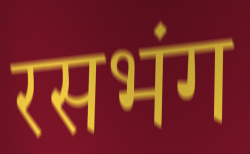
रसभंग